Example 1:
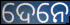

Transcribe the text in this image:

ଦେନେ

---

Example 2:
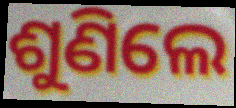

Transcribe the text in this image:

ଶୁଣିଲେ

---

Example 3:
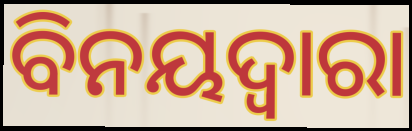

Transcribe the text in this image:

ବିନୟଦ୍ୱାରା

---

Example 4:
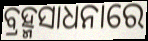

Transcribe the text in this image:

ବ୍ରହ୍ମସାଧନାରେ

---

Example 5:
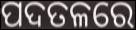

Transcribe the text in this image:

ପଦତଳରେ